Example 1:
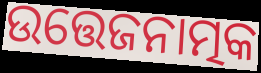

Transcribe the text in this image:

ଉତ୍ତେଜନାତ୍ମକ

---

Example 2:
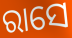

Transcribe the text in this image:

ରାସେ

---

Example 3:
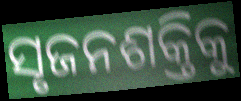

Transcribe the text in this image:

ସୃଜନଶକ୍ତିକୁ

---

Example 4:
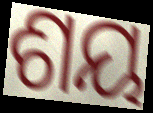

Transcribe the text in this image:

ଶୟ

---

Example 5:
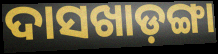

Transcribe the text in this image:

ଦାସଖାଡ଼ଙ୍ଗା